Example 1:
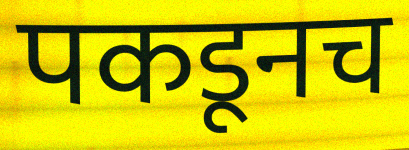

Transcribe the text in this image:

पकडूनच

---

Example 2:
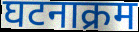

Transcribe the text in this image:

घटनाक्रम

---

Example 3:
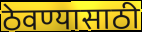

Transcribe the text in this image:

ठेवण्यासाठी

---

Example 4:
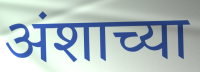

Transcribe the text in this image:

अंशाच्या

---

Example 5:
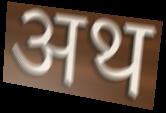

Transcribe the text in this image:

अथ